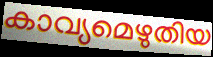
കാവ്യമെഴുതിയ